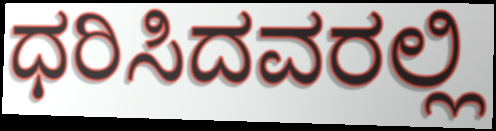
ಧರಿಸಿದವರಲ್ಲಿ